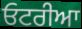
ਓਟਰੀਆ